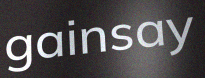
gainsay